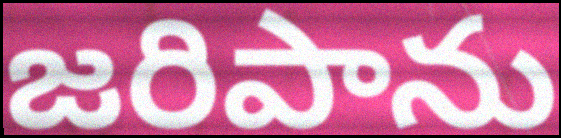
జరిపాను